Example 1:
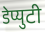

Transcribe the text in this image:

डेप्युटी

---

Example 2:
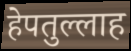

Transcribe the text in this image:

हेपतुल्लाह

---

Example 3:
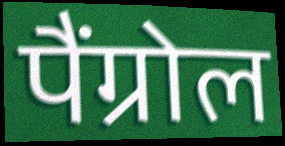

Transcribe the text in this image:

पैंग्रोल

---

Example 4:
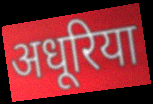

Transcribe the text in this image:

अधूरिया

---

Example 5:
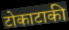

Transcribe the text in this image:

टोकाटाकी